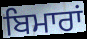
ਬਿਮਾਰਾਂ